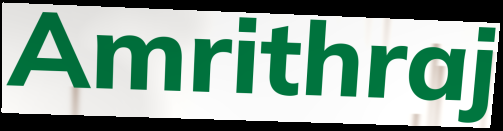
Amrithraj